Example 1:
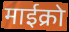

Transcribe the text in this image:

माईक्रो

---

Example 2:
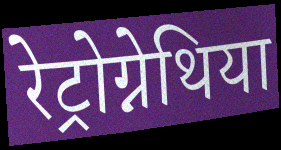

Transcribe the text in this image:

रेट्रोग्नेथिया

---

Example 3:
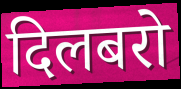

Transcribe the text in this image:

दिलबरो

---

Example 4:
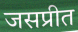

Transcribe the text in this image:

जसप्रीत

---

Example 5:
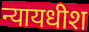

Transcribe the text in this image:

न्यायधीश